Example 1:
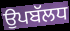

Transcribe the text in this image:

ਉਪਬੱਲਧ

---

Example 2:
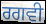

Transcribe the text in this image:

ਰਗਵੀ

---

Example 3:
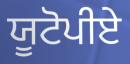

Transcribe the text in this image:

ਯੂਟੋਪੀਏ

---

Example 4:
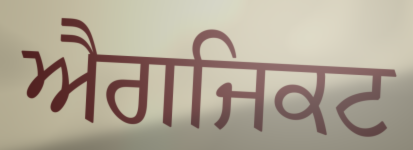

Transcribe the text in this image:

ਐਗਜਿਕਟ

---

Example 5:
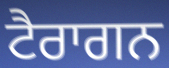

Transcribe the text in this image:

ਟੈਰਾਗਨ